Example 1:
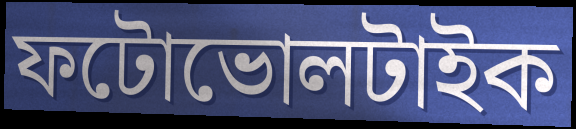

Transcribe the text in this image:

ফটোভোলটাইক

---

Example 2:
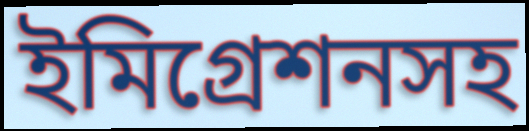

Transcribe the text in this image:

ইমিগ্রেশনসহ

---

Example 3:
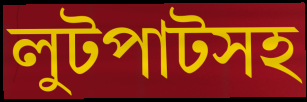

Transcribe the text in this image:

লুটপাটসহ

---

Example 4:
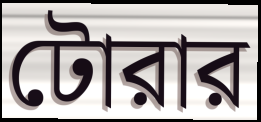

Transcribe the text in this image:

টোরার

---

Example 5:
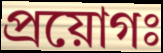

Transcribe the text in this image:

প্রয়োগঃ